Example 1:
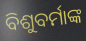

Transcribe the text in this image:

ବିଶୁବର୍ମାଙ୍କ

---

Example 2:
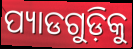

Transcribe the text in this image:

ପ୍ୟାଡଗୁଡ଼ିକୁ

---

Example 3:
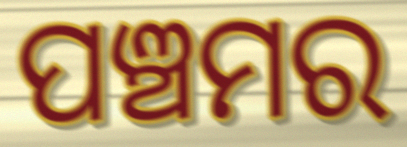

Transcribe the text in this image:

ପଞ୍ଚମର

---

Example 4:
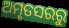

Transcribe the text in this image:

ଅମୃତସରରୁ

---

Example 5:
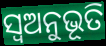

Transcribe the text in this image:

ସ୍ୱଅନୁଭୂତି